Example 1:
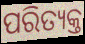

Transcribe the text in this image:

ପରିତ୍ଯକ୍ତ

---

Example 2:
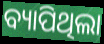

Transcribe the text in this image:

ବ୍ୟାପିଥିଲା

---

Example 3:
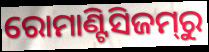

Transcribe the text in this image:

ରୋମାଣ୍ଟିସିଜମ୍‌ରୁ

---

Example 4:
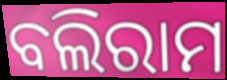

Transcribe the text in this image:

ବଲିରାମ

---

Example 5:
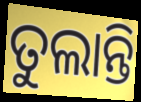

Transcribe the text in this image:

ତୁଲାନ୍ତି